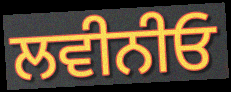
ਲਵੀਨੀਓ